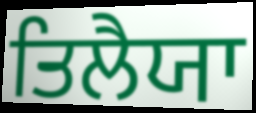
ਤਿਲੈਯਾ